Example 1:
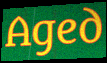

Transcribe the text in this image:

Aged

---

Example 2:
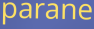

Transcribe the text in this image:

parane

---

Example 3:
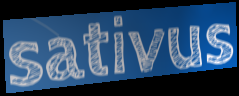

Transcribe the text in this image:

sativus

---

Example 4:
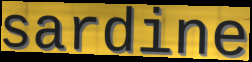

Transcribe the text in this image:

sardine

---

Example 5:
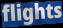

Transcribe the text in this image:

flights